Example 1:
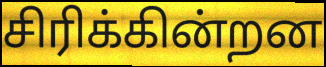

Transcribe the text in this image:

சிரிக்கின்றன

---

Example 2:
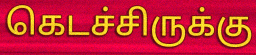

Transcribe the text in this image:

கெடச்சிருக்கு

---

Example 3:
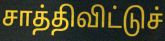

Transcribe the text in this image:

சாத்திவிட்டுச்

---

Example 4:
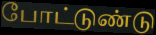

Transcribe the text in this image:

போட்டுண்டு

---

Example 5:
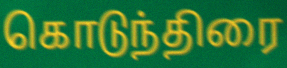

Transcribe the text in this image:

கொடுந்திரை